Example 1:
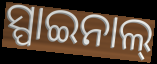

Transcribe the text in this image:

ସ୍ପାଇନାଲ୍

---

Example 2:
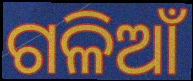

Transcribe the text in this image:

ଗଳିଆଁ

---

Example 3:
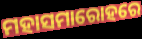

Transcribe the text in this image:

ମହାସମାରୋହରେ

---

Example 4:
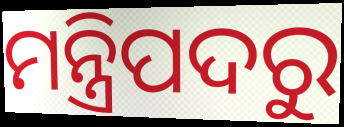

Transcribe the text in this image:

ମନ୍ତ୍ରିପଦରୁ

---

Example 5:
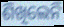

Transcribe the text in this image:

ଶିଖିଲେନି